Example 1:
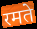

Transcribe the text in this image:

रमते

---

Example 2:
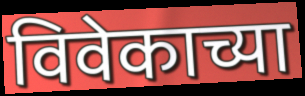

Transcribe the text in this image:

विवेकाच्या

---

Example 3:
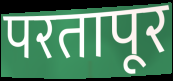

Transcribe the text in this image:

परतापूर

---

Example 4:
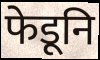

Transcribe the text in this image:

फेडूनि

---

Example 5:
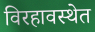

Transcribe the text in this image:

विरहावस्थेत